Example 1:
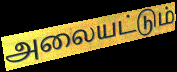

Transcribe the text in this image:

அலையட்டும்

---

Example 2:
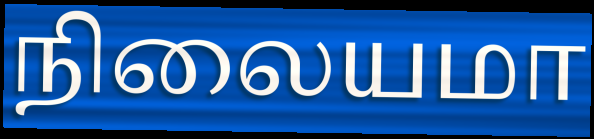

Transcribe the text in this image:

நிலையமா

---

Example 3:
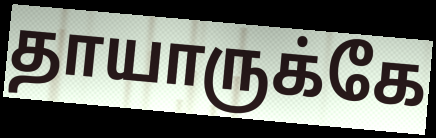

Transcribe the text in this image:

தாயாருக்கே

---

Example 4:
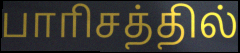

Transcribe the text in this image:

பாரிசத்தில்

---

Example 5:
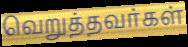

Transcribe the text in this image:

வெறுத்தவர்கள்